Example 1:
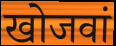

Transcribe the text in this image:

खोजवां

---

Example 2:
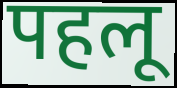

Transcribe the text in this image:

पहलू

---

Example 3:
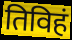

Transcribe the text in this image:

तिविहं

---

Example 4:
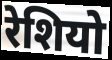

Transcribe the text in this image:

रेशियो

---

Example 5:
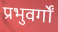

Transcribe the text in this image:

प्रभुवर्गों